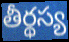
తీర్థస్య